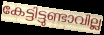
കേട്ടിട്ടുണ്ടാവില്ല